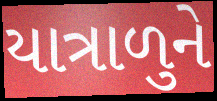
યાત્રાળુને